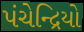
પંચેન્દ્રિયો